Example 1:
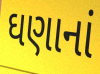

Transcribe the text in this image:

ઘણાનાં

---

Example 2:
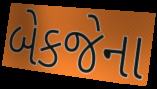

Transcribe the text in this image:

બેકજેના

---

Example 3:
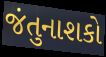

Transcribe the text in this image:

જંતુનાશકો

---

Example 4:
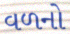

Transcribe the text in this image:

વળનો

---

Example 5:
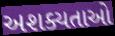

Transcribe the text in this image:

અશક્યતાઓ